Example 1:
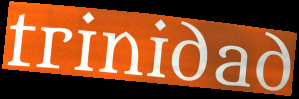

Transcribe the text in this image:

trinidad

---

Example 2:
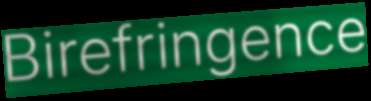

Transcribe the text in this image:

Birefringence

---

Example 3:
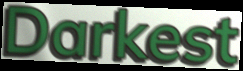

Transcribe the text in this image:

Darkest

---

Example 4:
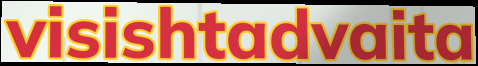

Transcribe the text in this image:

visishtadvaita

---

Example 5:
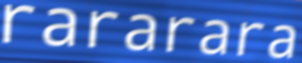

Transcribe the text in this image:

rararara